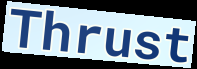
Thrust